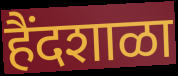
हैंदशाळा